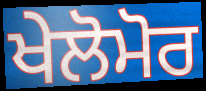
ਖੇਲੋਮੋਰ